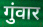
गुंवार